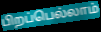
பிறப்பெல்லாம்